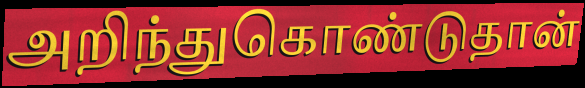
அறிந்துகொண்டுதான்